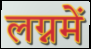
लग्नमें